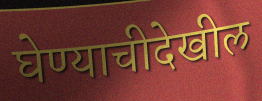
घेण्याचीदेखील